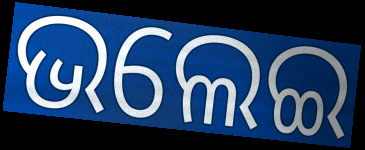
ଭଲେଇ